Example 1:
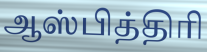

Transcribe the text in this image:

ஆஸ்பித்திரி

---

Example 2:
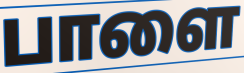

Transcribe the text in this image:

பாளை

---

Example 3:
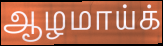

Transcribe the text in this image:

ஆழமாய்க்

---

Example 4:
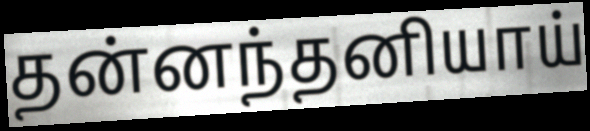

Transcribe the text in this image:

தன்னந்தனியாய்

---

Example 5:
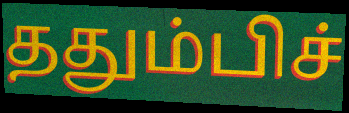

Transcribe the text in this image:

ததும்பிச்